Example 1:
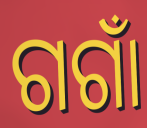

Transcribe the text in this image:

ଗଗାଁ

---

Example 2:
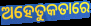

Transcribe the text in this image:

ଅହେତୁକତାରେ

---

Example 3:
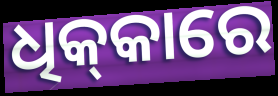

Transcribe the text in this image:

ଧିକ୍‌କାରେ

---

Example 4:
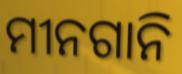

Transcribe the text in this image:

ମୀନଗାନି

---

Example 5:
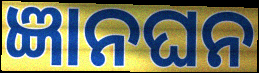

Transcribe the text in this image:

ଜ୍ଞାନଘନ